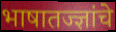
भाषातज्ज्ञांचे